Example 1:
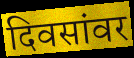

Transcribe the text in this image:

दिवसांवर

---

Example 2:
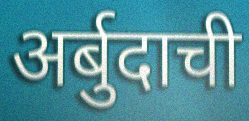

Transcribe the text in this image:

अर्बुदाची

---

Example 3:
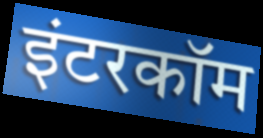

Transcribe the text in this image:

इंटरकॉम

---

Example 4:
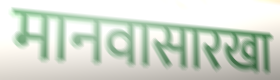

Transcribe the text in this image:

मानवासारखा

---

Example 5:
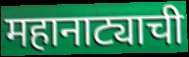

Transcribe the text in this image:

महानाट्याची